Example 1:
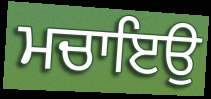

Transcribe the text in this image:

ਮਚਾਇਉ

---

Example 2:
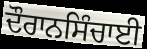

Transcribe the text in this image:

ਦੌਰਾਨਸਿੰਚਾਈ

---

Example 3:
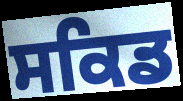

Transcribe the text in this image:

ਸਕਿਡ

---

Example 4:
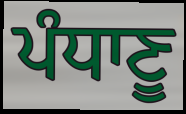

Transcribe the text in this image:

ਪੰਧਾਣੂ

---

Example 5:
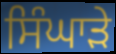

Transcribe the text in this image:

ਸਿੰਘਾੜੇ